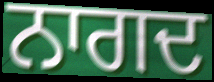
ਨਾਗਦ